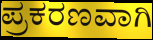
ಪ್ರಕರಣವಾಗಿ